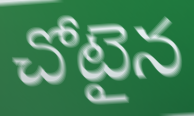
చోటైన